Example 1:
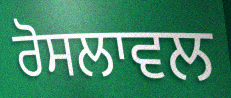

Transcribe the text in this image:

ਰੋਸਲਾਵਲ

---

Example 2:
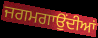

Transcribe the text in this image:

ਜਗਮਗਾਉਂਦੀਆਂ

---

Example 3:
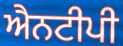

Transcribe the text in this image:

ਐਨਟੀਪੀ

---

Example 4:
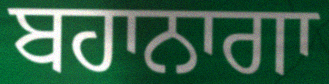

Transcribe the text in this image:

ਬਹਾਨਾਗਾ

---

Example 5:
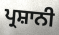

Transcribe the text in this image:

ਪ੍ਰਸ਼ਾਨੀ